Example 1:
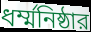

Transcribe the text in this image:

ধর্ম্মনিষ্ঠার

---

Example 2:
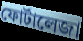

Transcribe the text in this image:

ফোর্টালেজা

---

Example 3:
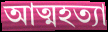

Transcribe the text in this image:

আত্মহত্যা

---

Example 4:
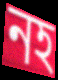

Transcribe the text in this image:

নহ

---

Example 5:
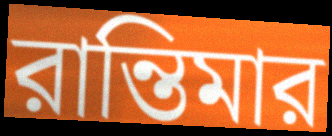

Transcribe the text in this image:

রান্তিমার